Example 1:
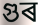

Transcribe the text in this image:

গুৰ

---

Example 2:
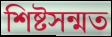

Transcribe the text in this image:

শিষ্টসন্মত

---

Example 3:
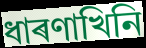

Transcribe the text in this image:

ধাৰণাখিনি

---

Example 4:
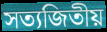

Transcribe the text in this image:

সত্যজিতীয়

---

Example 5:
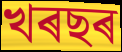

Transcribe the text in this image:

খৰছৰ